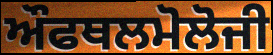
ਔਫਥਲਮੋਲੋਜੀ